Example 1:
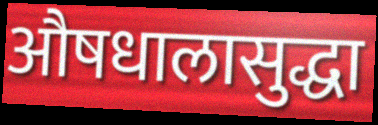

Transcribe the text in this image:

औषधालासुद्धा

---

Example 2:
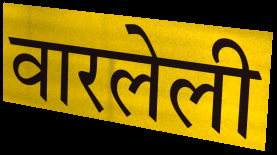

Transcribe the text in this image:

वारलेली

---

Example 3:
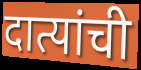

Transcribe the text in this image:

दात्यांची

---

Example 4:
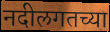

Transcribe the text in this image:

नदीलगतच्या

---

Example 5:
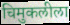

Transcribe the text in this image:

चिमुकलीला